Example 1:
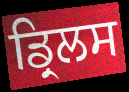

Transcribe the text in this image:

ਡ੍ਰਿਲਸ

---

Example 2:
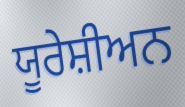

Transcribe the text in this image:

ਯੂਰੇਸ਼ੀਅਨ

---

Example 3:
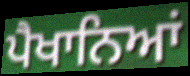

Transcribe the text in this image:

ਪੈਖਾਨਿਆਂ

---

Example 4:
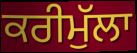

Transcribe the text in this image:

ਕਰੀਮੁੱਲਾ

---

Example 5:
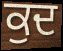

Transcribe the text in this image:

ਕੁਦ